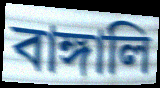
বাঙ্গালি